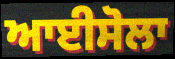
ਆਈਸੋਲਾ